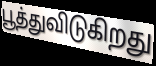
பூத்துவிடுகிறது